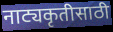
नाट्यकृतीसाठी